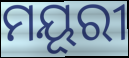
ମୟୂରୀ